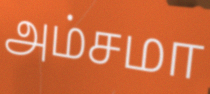
அம்சமா